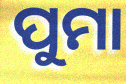
ପୁମା